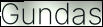
Gundas